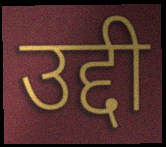
उद्दी